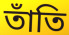
তাঁতি